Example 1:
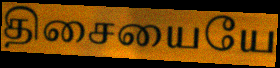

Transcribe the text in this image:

திசையையே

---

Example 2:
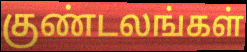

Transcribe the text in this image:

குண்டலங்கள்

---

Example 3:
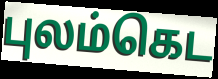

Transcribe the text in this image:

புலம்கெட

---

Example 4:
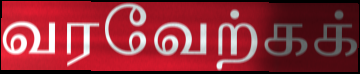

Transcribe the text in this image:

வரவேற்கக்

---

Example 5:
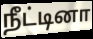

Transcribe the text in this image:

நீட்டினா